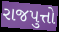
રાજપુત્તો